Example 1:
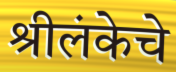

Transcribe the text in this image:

श्रीलंकेचे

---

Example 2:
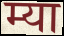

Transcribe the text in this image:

म्या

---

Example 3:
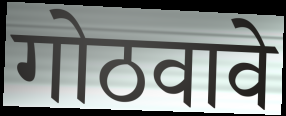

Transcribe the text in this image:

गोठवावे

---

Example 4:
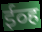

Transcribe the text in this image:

ईव्ह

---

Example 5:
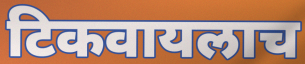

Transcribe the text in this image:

टिकवायलाच